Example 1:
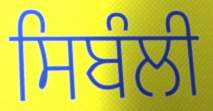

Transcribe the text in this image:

ਸਿਬੰਲੀ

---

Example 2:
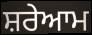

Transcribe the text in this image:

ਸ਼ਰੇਆਮ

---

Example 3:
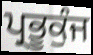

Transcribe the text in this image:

ਪ੍ਰਭੂਕੁੰਜ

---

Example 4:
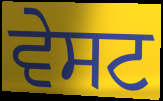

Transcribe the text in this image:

ਵੇਸਟ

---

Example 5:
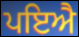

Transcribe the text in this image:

ਪਇਐ